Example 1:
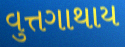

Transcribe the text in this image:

વુત્તગાથાય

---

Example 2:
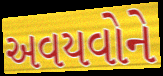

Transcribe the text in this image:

અવયવોને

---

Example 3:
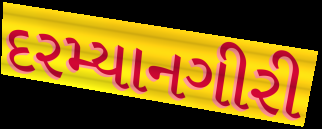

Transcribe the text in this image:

દરમ્યાનગીરી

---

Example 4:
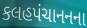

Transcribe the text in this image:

કલહપંચાનનના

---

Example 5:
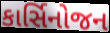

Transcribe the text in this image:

કાર્સિનોજન